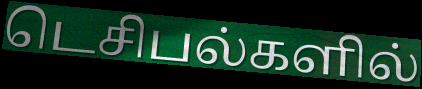
டெசிபல்களில்